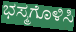
ಭಸ್ಮಗೊಳಿಸಿ